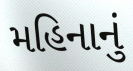
મહિનાનું